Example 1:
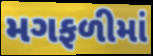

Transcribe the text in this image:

મગફળીમાં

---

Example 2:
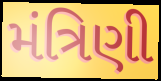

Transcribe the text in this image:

મંત્રિણી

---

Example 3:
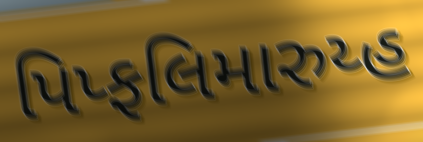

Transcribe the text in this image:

પિપ્ફલિમારુય્હ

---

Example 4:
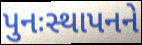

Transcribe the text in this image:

પુનઃસ્થાપનને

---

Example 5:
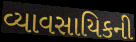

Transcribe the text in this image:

વ્યાવસાયિકની